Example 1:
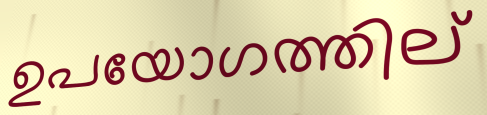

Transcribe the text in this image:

ഉപയോഗത്തില്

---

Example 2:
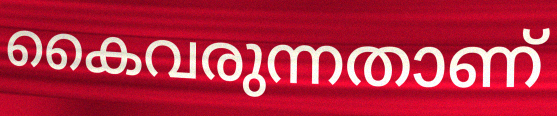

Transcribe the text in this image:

കൈവരുന്നതാണ്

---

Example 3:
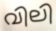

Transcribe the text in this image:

വിലി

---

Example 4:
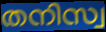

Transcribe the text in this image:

തനിസ്വ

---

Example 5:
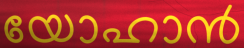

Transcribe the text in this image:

യോഹാൻ